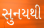
સુનયથી